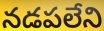
నడపలేని